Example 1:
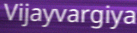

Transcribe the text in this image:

Vijayvargiya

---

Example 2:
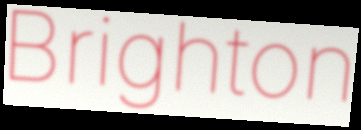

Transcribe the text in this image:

Brighton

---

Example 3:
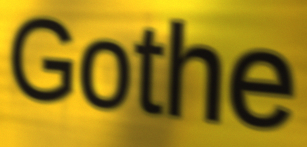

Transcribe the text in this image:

Gothe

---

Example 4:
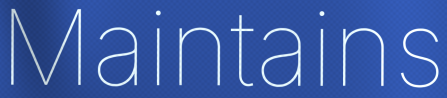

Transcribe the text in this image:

Maintains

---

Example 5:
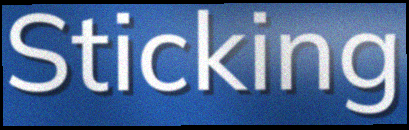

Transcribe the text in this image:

Sticking